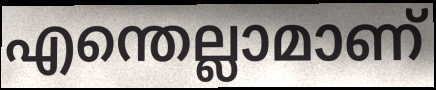
എന്തെല്ലാമാണ്